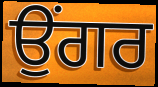
ਉਂਗਰ